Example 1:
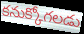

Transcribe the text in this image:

కనుక్కోగలడు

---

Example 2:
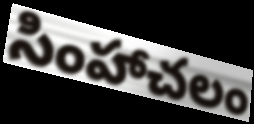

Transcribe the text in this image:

సింహాచలం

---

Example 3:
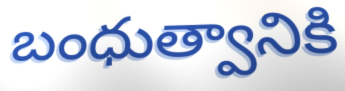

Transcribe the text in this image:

బంధుత్వానికి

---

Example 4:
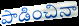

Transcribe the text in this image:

పాడించినా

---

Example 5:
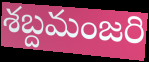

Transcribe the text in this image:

శబ్దమంజరి